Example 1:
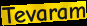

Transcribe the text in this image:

Tevaram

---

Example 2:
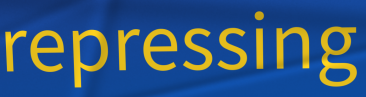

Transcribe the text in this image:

repressing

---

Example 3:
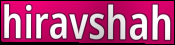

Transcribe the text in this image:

hiravshah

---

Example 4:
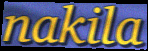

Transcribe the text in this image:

nakila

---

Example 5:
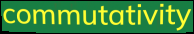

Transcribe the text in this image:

commutativity